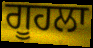
ਗੂਹਲਾ